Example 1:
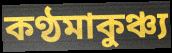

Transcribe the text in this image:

কণ্ঠমাকুঞ্চ্য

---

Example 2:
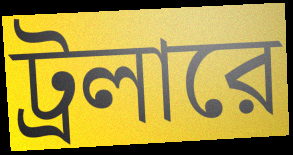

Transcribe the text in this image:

ট্রলারে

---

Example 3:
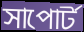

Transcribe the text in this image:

সাপোর্ট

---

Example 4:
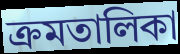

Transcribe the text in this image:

ক্রমতালিকা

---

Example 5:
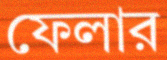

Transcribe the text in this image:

ফেলার